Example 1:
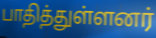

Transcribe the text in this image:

பாதித்துள்ளனர்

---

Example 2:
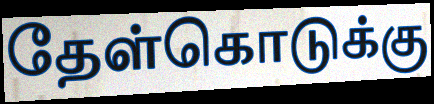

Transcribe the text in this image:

தேள்கொடுக்கு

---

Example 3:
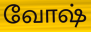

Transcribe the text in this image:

வோஷ்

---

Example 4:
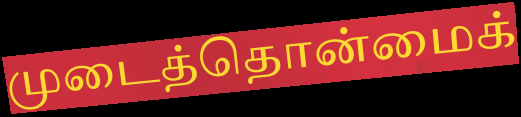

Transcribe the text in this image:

முடைத்தொன்மைக்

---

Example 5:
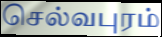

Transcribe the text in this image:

செல்வபுரம்